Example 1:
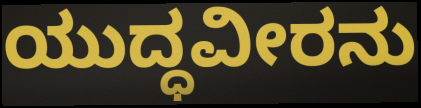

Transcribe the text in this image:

ಯುದ್ಧವೀರನು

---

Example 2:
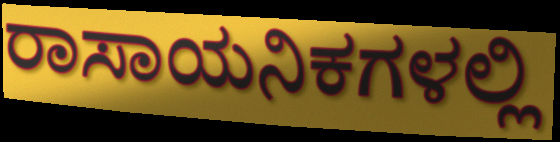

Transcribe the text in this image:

ರಾಸಾಯನಿಕಗಳಲ್ಲಿ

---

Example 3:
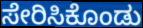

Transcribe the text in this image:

ಸೇರಿಸಿಕೊಂಡು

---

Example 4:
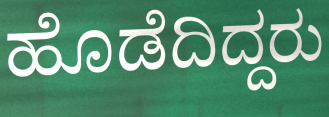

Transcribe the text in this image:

ಹೊಡೆದಿದ್ದರು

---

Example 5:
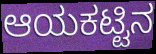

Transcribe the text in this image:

ಆಯಕಟ್ಟಿನ